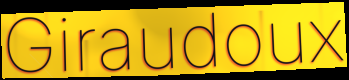
Giraudoux